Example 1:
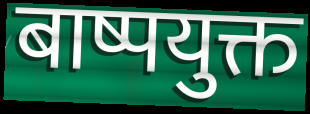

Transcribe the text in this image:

बाष्पयुक्त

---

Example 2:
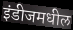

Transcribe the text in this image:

इंडीजमधील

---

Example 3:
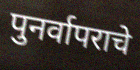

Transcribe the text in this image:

पुनर्वापराचे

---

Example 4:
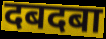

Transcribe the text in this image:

दबदबा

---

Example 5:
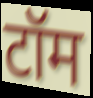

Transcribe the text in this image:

टॉम